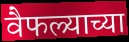
वैफल्याच्या